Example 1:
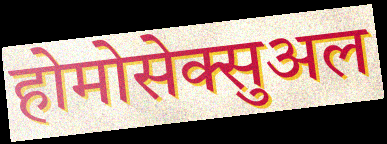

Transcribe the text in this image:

होमोसेक्सुअल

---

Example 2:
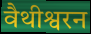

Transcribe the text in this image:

वैथीश्वरन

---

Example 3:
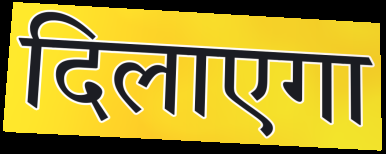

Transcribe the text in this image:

दिलाएगा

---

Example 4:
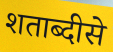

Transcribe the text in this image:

शताब्दीसे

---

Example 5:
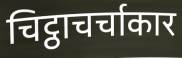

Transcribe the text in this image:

चिट्ठाचर्चाकार